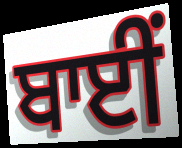
ਬਾਈਂ